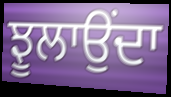
ਝੂਲਾਉਂਦਾ